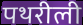
पथरीली